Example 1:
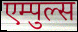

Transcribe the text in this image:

एम्पुल्स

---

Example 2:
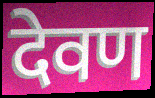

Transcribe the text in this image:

देवण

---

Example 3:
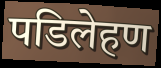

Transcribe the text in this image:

पडिलेहण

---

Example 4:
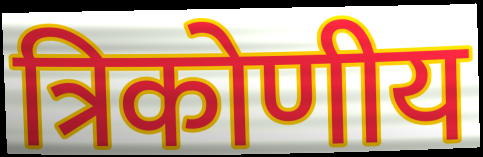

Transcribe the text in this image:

त्रिकोणीय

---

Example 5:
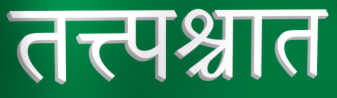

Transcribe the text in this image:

तत्त्पश्चात